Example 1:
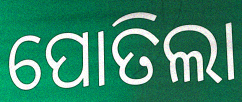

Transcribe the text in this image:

ପୋତିଲା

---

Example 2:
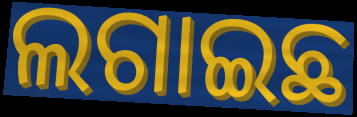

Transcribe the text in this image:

ଲଗାଇଛ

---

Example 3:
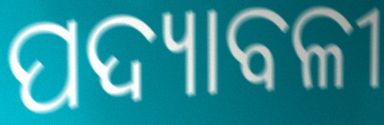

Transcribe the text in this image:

ପଦ୍ୟାବଳୀ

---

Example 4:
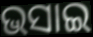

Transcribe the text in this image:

ଭସାଇ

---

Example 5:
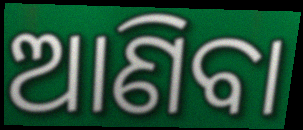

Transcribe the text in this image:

ଆଣିବା